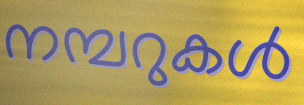
നമ്പറുകൾ